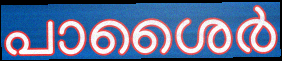
പാശൈർ